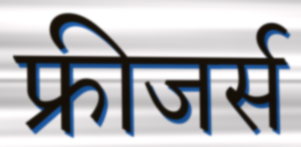
फ्रीजर्स